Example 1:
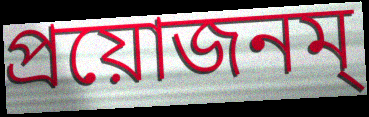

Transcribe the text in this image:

প্রয়োজনম্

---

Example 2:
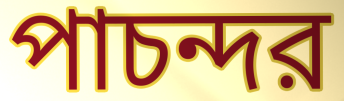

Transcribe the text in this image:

পাচন্দর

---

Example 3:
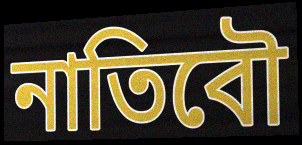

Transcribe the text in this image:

নাতিবৌ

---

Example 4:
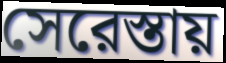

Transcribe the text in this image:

সেরেস্তায়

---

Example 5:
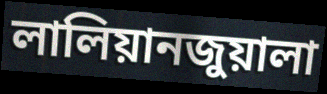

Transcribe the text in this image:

লালিয়ানজুয়ালা